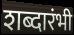
शब्दारंभी